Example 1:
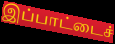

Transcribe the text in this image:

இப்பாட்டைச்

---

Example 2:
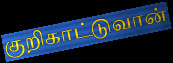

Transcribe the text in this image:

குறிகாட்டுவான்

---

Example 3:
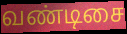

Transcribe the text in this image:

வண்டிசை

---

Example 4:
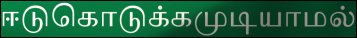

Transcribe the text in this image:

ஈடுகொடுக்கமுடியாமல்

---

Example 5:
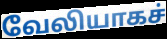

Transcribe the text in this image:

வேலியாகச்